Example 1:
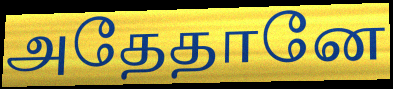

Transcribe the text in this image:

அதேதானே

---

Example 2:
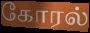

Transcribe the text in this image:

கோரல்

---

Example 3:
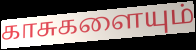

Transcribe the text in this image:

காசுகளையும்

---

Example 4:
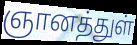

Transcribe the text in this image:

ஞானத்துள்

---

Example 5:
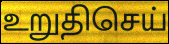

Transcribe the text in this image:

உறுதிசெய்